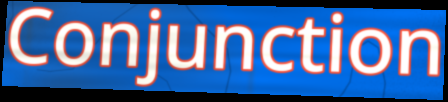
Conjunction